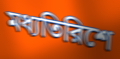
মধ্যতিরিশে